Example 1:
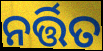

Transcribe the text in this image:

ନର୍ତ୍ତିତ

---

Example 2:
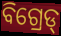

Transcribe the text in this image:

ବିଗ୍ରେଡ୍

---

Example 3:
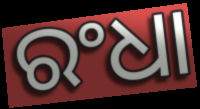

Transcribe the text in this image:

ରଂଧା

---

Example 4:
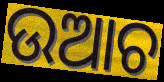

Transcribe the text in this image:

ଉଆଚ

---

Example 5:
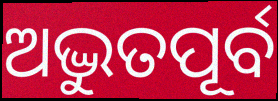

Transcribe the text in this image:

ଅଦ୍ଭୁତପୂର୍ବ